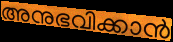
അനുഭവിക്കാൻ